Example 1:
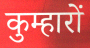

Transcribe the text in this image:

कुम्हारों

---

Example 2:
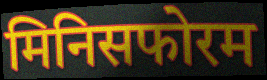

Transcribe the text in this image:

मिनिसफोरम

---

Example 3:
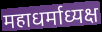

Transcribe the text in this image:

महाधर्माध्यक्ष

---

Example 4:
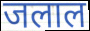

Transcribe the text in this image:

जलाल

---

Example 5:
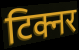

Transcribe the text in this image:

टिक्नर